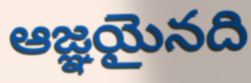
ఆజ్ఞయైనది